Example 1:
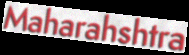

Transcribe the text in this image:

Maharahshtra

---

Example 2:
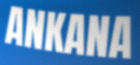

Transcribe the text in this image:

ANKANA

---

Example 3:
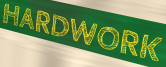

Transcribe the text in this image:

HARDWORK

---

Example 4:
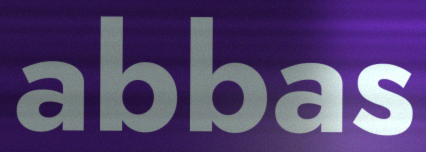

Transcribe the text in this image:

abbas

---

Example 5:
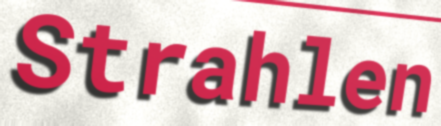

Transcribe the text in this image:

Strahlen